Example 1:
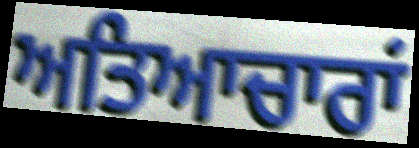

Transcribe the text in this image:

ਅਤਿਆਚਾਰਾਂ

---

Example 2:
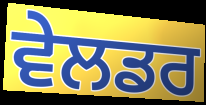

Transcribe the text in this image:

ਵੇਲਡਰ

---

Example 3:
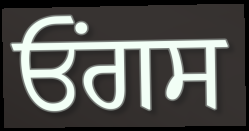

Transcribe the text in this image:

ਓਂਗਸ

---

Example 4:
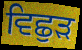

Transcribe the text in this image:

ਵਿਛੁੜ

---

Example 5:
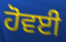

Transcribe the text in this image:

ਹੋਵਈ